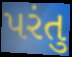
પરંતુ